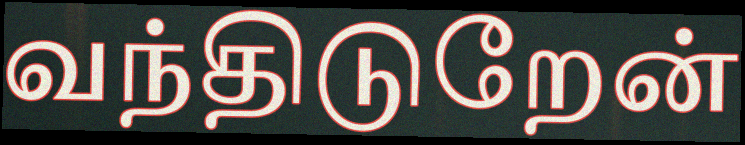
வந்திடுறேன்